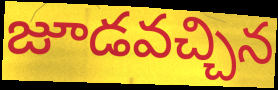
జూడవచ్చిన